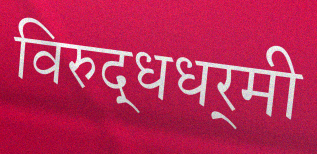
विरुद्धधर्मी